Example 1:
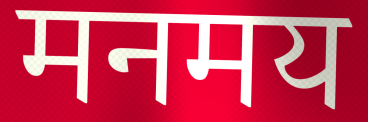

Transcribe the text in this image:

मनमय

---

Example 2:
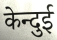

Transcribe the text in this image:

केन्दुई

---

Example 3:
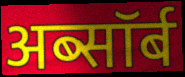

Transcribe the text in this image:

अब्सॉर्ब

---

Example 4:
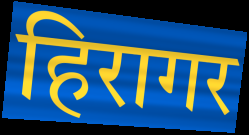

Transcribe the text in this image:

हिरागर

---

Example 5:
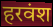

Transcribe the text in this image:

हरवंश